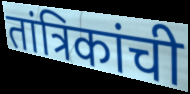
तांत्रिकांची